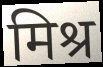
मिश्र